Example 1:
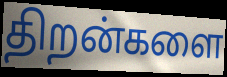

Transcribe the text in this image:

திறன்களை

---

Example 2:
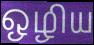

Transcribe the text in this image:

ஒழிய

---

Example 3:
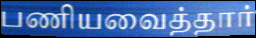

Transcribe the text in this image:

பணியவைத்தார்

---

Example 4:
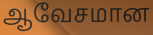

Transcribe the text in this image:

ஆவேசமான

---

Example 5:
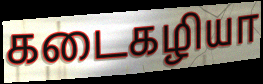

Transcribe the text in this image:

கடைகழியா